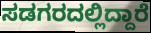
ಸಡಗರದಲ್ಲಿದ್ದಾರೆ